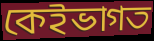
কেইভাগত